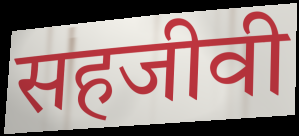
सहजीवी